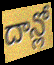
దాన్లో